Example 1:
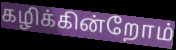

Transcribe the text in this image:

கழிக்கின்றோம்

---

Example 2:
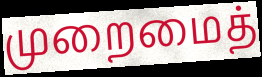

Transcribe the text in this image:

முறைமைத்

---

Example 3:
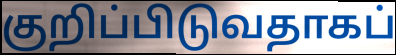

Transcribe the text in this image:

குறிப்பிடுவதாகப்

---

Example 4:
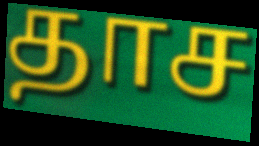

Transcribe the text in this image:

தாச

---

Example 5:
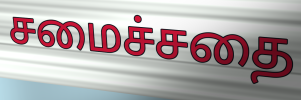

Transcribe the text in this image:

சமைச்சதை